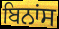
ਬਿਨਾਂਸ